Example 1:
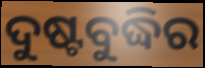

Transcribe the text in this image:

ଦୁଷ୍ଟବୁଦ୍ଧିର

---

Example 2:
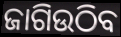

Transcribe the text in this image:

ଜାଗିଉଠିବ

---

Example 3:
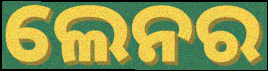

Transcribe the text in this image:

ଲେନର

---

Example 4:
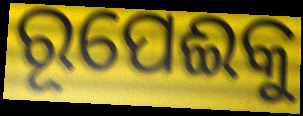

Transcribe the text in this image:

ରୂପେଈକୁ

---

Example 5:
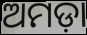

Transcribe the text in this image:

ଅମଡ଼ା